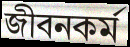
জীবনকর্ম